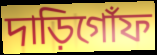
দাড়িগোঁফ